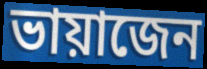
ভায়াজেন